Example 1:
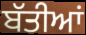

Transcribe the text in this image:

ਬੱਤੀਆਂ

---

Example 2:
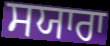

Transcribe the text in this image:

ਸਯਾਰਾ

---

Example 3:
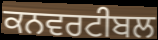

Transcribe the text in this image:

ਕਨਵਰਟੀਬਲ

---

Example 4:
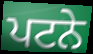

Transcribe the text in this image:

ਪਟਨੇ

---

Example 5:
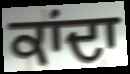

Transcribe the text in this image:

ਕਾਂਦਾ